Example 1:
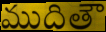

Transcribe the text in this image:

ముదితౌ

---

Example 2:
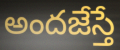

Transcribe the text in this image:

అందజేస్తే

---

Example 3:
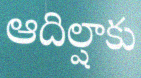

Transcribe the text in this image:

ఆదిల్షాకు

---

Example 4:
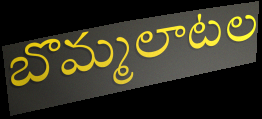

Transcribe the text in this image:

బొమ్మలాటల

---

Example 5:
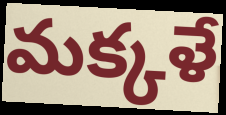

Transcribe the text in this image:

మక్కళే